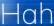
Hah